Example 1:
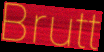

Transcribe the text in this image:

Brutt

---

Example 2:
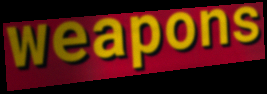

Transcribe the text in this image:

weapons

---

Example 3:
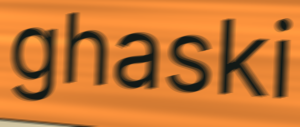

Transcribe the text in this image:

ghaski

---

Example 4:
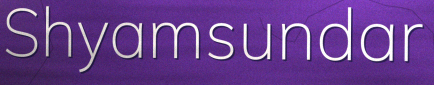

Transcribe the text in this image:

Shyamsundar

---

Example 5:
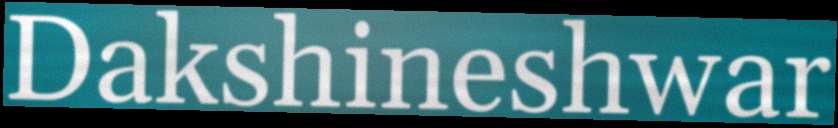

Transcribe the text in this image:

Dakshineshwar